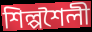
শিল্পশৈলী